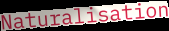
Naturalisation